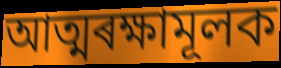
আত্মৰক্ষামূলক